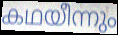
കഥയീന്നും